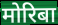
मोरिबा